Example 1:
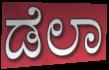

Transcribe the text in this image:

ಡೆಲಾ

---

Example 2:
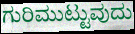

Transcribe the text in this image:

ಗುರಿಮುಟ್ಟುವುದು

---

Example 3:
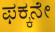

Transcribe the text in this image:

ಫಕ್ಕನೇ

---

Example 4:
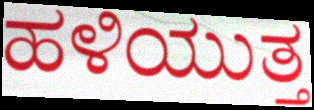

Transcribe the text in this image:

ಹಳಿಯುತ್ತ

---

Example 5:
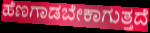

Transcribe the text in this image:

ಹೆಣಗಾಡಬೇಕಾಗುತ್ತದೆ